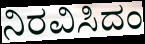
ನಿರವಿಸಿದಂ